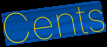
Cents